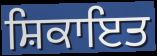
ਸ਼ਿਕਾਇਤ